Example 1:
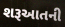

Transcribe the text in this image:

શરૂઆતની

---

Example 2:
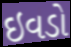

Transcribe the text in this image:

ઇવડો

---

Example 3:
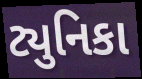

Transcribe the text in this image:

ટ્યુનિકા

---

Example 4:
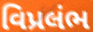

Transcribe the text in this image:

વિપ્રલંભ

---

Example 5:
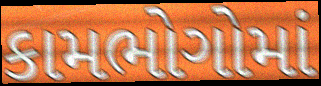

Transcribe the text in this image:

કામભોગોમાં